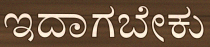
ಇದಾಗಬೇಕು